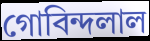
গোবিন্দলাল